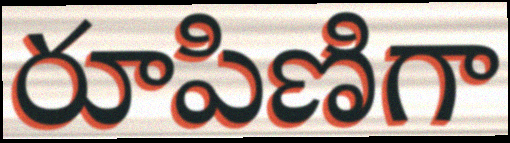
రూపిణిగా